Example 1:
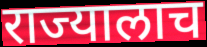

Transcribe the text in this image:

राज्यालाच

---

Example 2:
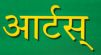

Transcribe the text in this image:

आर्टस्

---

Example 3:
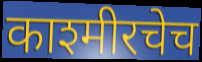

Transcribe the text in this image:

काश्मीरचेच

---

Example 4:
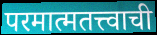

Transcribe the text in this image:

परमात्मतत्त्वाची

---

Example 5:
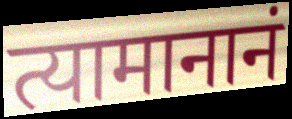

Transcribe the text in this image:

त्यामानानं